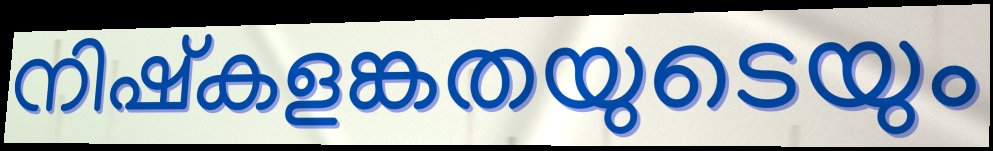
നിഷ്കളങ്കതയുടെയും